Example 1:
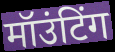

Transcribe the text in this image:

मॉउंटिंग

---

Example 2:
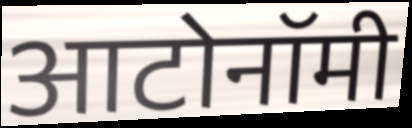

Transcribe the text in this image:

आटोनॉमी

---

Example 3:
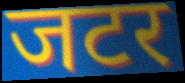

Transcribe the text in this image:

जटर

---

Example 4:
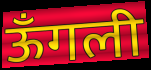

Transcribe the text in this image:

ऊँगली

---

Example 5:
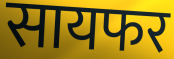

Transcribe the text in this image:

सायफर